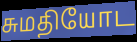
சுமதியோட